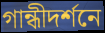
গান্ধীদর্শনে